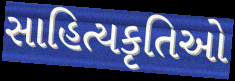
સાહિત્યકૃતિઓ